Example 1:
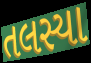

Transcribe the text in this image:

તલસ્યા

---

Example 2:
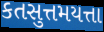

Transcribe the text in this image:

કતસુત્તમયત્તા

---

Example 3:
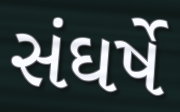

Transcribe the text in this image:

સંઘર્ષે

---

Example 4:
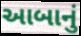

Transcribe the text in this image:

આબાનું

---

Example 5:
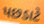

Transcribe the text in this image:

પછડાટે